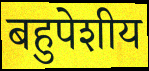
बहुपेशीय